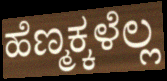
ಹೆಣ್ಮಕ್ಕಳೆಲ್ಲ